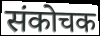
संकोचक